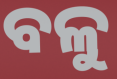
ବଳୁ